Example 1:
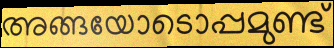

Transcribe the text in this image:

അങ്ങയോടൊപ്പമുണ്ട്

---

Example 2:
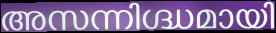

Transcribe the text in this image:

അസന്നിഗ്ദ്ധമായി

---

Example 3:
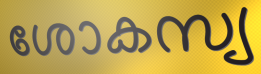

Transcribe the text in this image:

ശോകസ്യ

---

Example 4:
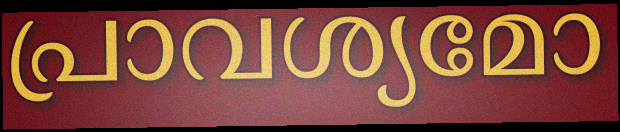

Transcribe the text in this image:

പ്രാവശ്യമോ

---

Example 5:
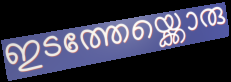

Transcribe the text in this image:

ഇടത്തേയ്ക്കൊരു